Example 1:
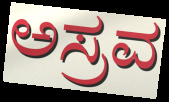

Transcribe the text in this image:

ಅಸ್ರವ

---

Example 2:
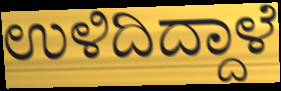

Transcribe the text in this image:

ಉಳಿದಿದ್ದಾಳೆ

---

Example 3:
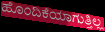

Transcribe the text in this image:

ಹೊಂದಿಕೆಯಾಗುತ್ತಿಲ್ಲ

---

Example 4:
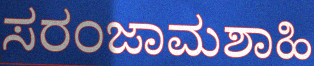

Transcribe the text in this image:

ಸರಂಜಾಮಶಾಹಿ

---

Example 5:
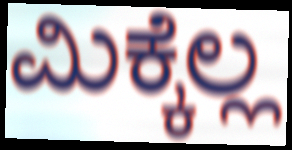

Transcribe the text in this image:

ಮಿಕ್ಕೆಲ್ಲ